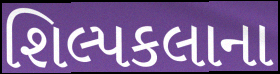
શિલ્પકલાના